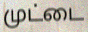
முட்டை